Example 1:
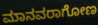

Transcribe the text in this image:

ಮಾನವರಾಗೋಣ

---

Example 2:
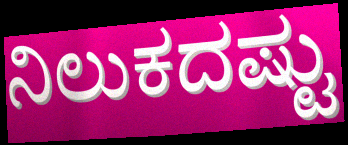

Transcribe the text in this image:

ನಿಲುಕದಷ್ಟು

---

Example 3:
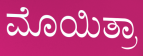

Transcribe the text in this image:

ಮೊಯಿತ್ರಾ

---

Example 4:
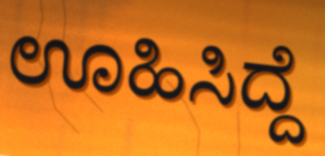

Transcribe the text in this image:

ಊಹಿಸಿದ್ದೆ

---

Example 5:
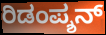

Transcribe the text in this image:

ರಿಡಂಪ್ಶನ್